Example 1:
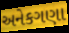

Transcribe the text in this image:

અનેકગણા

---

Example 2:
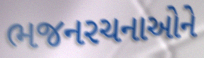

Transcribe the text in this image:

ભજનરચનાઓને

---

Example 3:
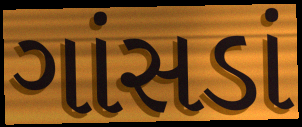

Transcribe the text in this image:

ગાંસડાં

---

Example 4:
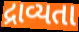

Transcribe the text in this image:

દ્રાવ્યતા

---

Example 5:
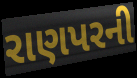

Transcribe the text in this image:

રાણપરની